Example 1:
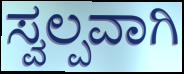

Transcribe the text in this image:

ಸ್ವಲ್ಪವಾಗಿ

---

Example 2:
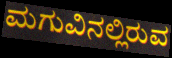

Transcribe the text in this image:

ಮಗುವಿನಲ್ಲಿರುವ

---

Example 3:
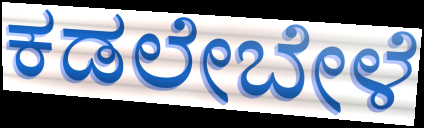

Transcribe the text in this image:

ಕಡಲೇಬೇಳೆ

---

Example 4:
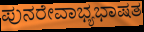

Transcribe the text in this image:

ಪುನರೇವಾಭ್ಯಭಾಷತ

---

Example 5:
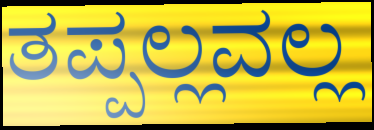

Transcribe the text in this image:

ತಪ್ಪಲ್ಲವಲ್ಲ